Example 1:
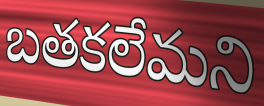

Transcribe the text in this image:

బతకలేమని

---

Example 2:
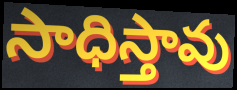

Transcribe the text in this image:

సాధిస్తావు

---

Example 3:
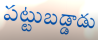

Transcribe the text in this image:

పట్టుబడ్డాడు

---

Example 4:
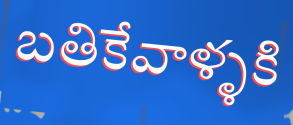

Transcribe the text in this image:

బతికేవాళ్ళకి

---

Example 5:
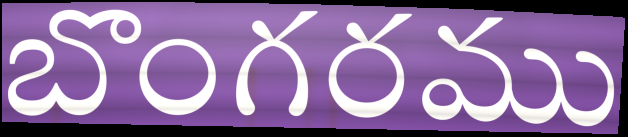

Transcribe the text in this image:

బొంగరము